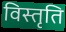
विस्तृति